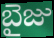
బైజు